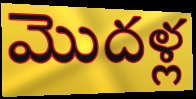
మొదళ్ల